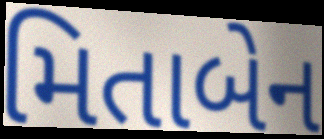
મિતાબેન